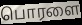
பொரளை